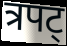
त्रपट्